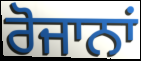
ਰੋਜਾਨਾਂ